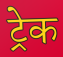
ट्रेक